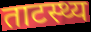
ताटस्थ्य